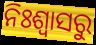
ନିଃଶ୍ଵାସରୁ